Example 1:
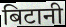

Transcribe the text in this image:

बिटानी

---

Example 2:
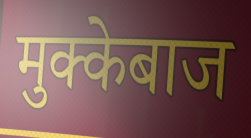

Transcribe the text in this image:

मुक्केबाज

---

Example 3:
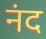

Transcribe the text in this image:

नंद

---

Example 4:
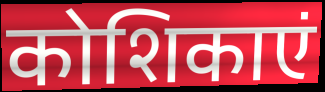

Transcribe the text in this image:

कोशिकाएं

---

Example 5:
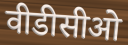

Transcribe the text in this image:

वीडीसीओ